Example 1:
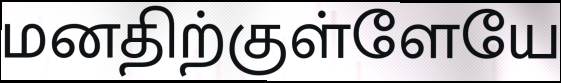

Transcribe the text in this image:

மனதிற்குள்ளேயே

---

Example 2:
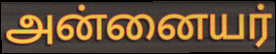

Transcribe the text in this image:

அன்னையர்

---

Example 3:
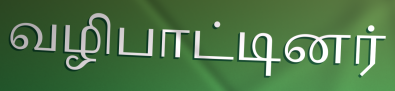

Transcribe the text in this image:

வழிபாட்டினர்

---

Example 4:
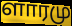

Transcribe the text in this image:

ளாரமு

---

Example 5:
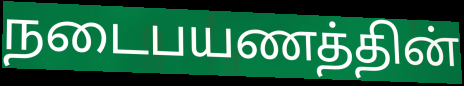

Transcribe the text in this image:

நடைபயணத்தின்